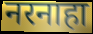
नरनाहा